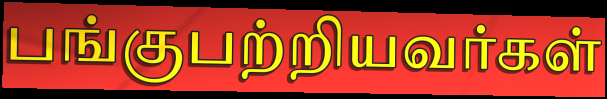
பங்குபற்றியவர்கள்